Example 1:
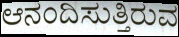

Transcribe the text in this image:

ಆನಂದಿಸುತ್ತಿರುವ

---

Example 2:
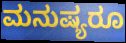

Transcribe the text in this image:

ಮನುಷ್ಯರೂ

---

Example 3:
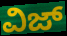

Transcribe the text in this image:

ವಿಜ್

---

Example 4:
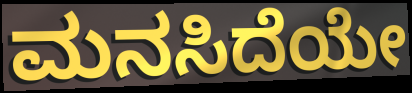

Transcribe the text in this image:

ಮನಸಿದೆಯೇ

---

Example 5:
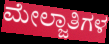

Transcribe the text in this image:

ಮೇಲ್ಜಾತಿಗಳ